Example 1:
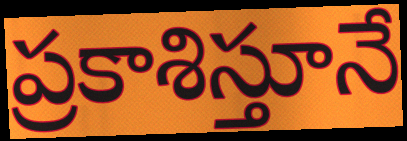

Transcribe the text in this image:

ప్రకాశిస్తూనే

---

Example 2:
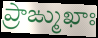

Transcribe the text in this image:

ప్రాఙ్ముఖాః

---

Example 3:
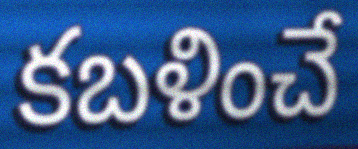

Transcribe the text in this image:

కబళించే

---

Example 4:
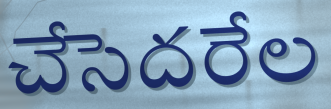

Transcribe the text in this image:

చేసెదరేల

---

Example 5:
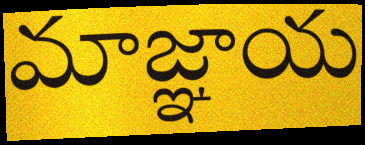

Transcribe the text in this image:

మాజ్ఞాయ